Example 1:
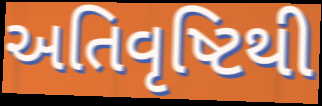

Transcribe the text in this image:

અતિવૃષ્ટિથી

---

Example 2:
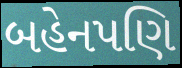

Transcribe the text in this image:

બહેનપણિ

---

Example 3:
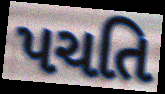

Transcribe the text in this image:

પચતિ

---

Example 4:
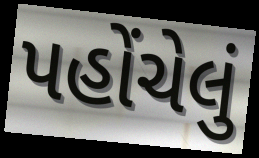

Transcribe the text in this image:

પહોંચેલું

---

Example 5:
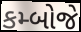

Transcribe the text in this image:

કમ્બોજે